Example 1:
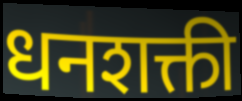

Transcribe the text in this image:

धनशक्ती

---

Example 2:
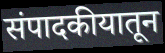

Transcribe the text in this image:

संपादकीयातून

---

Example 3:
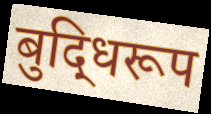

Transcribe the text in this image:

बुद्धिरूप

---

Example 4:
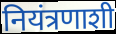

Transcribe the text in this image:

नियंत्रणाशी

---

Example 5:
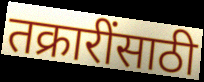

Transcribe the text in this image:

तक्रारींसाठी